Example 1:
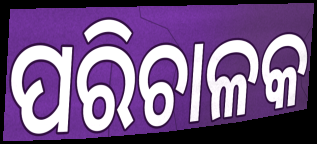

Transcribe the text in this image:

ପରିଚାଳକ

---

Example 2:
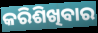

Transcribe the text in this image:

କରିଶିଖିବାର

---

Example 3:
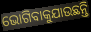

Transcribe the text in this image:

ଭୋଗିବାକୁଯାଉଛନ୍ତି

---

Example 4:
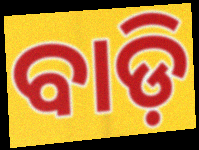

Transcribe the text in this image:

ବାଡ଼ି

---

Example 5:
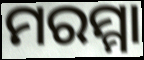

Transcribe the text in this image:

ମରମ୍ମା